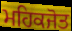
ਮਹਿਕਜੋਤ